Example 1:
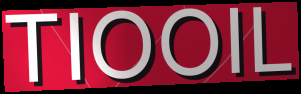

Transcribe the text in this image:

TIOOIL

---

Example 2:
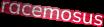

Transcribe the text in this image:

racemosus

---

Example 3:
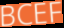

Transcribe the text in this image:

BCEF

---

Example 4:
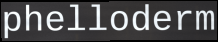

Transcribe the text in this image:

phelloderm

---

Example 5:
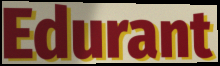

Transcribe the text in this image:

Edurant